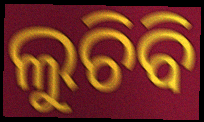
ଲୁଚିବି